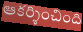
ఆకర్శించింది